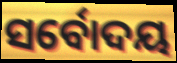
ସର୍ବୋଦୟ